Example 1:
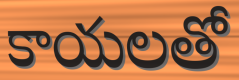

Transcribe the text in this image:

కాయలతో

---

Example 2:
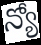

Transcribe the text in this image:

న్యో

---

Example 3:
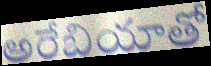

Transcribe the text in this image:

అరేబియాతో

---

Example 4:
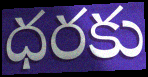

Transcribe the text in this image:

ధరకు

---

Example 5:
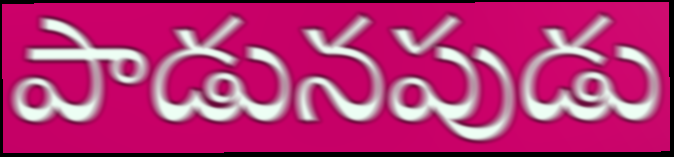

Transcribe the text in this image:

పాడునపుడు